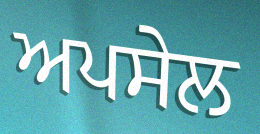
ਅਪਸੇਲ